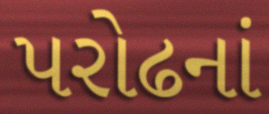
પરોઢનાં